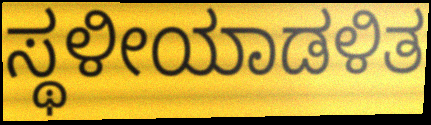
ಸ್ಥಳೀಯಾಡಳಿತ